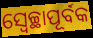
ସ୍ଵେଚ୍ଛାପୂର୍ବକ